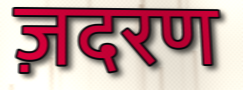
ज़दरण